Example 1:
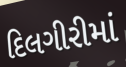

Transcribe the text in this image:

દિલગીરીમાં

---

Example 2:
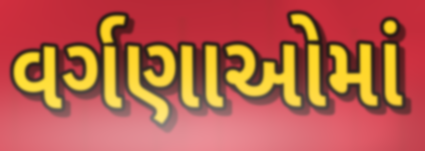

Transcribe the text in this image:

વર્ગણાઓમાં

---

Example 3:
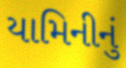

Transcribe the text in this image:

યામિનીનું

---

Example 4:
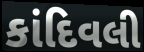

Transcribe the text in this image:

કાંદિવલી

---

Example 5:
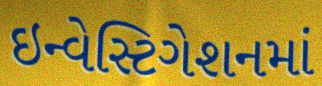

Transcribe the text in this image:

ઇન્વેસ્ટિગેશનમાં